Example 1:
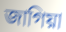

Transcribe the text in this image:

জাগিয়া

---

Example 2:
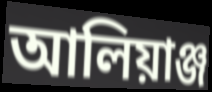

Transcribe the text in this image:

আলিয়াঞ্জ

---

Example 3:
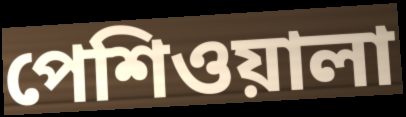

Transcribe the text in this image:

পেশিওয়ালা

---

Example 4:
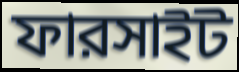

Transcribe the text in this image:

ফারসাইট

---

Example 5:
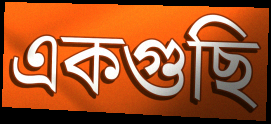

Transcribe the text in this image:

একগুছি